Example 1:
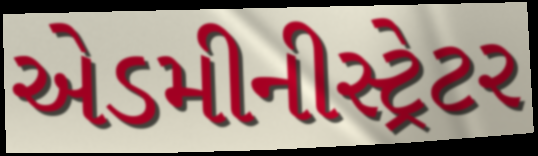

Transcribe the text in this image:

એડમીનીસ્ટ્રેટર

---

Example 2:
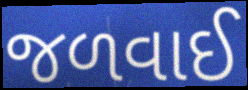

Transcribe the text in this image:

જળવાઈ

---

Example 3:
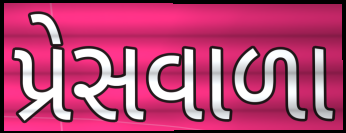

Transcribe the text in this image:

પ્રેસવાળા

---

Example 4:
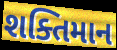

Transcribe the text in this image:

શક્તિમાન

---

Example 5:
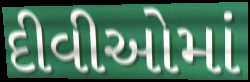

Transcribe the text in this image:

દીવીઓમાં